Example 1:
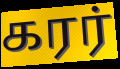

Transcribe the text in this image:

கரர்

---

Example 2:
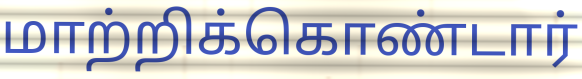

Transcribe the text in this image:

மாற்றிக்கொண்டார்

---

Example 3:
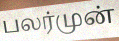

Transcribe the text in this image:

பலர்முன்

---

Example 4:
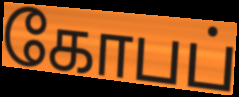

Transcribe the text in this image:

கோபப்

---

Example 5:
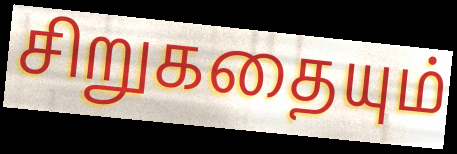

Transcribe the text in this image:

சிறுகதையும்